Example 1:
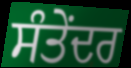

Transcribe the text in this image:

ਸੰਤੇਂਦਰ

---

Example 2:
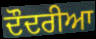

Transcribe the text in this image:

ਦੌਦਰੀਆ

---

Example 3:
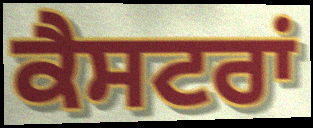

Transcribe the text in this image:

ਕੈਸਟਰਾਂ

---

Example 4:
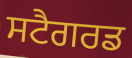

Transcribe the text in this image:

ਸਟੈਗਰਡ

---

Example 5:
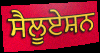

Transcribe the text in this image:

ਸੈਲੂਏਸ਼ਨ